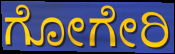
ಗೋಗೇರಿ